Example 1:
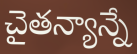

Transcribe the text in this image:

చైతన్యాన్నే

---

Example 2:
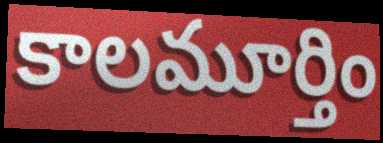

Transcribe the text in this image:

కాలమూర్తిం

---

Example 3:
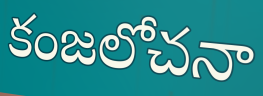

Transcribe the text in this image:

కంజలోచనా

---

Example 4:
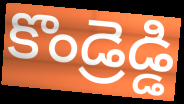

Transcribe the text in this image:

కొండ్రెడ్డి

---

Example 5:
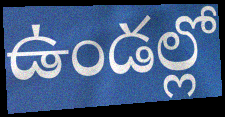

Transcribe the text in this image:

ఉండల్లో